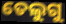
ତେଲୁଗୁ